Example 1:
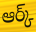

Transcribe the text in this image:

ఆర్క్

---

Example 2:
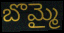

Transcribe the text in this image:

బొమ్మై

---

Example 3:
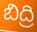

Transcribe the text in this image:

బిద్రి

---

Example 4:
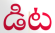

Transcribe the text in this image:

డిట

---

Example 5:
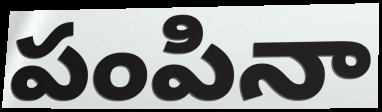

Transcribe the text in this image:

పంపినా